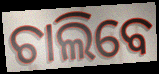
ଚାଲିବେ